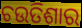
ଚଉତିଶାର